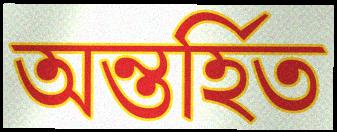
অন্তর্হিত